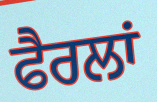
ਫੈਰਲਾਂ